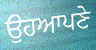
ਉਹਆਪਣੇ